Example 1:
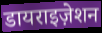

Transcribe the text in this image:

डायराइज़ेशन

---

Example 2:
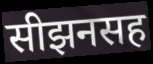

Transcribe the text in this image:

सीझनसह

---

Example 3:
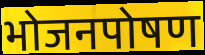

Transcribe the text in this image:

भोजनपोषण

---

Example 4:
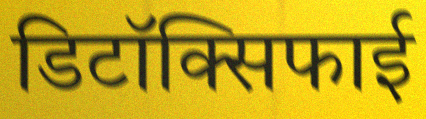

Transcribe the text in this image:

डिटॉक्सिफाई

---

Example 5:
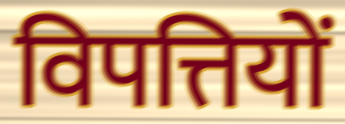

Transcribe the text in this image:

विपत्तियों